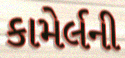
કામેર્લની